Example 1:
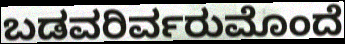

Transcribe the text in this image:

ಬಡವರಿರ್ವರುಮೊಂದೆ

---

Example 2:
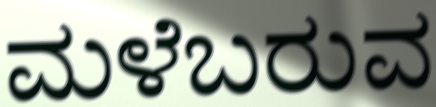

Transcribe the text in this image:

ಮಳೆಬರುವ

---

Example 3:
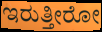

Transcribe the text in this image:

ಇರುತ್ತೀರೋ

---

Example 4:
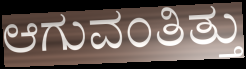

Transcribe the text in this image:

ಆಗುವಂತಿತ್ತು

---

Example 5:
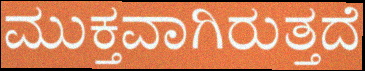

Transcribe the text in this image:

ಮುಕ್ತವಾಗಿರುತ್ತದೆ